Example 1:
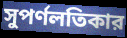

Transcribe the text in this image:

সুপর্ণলতিকার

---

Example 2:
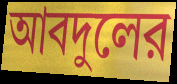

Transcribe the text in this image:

আবদুলের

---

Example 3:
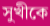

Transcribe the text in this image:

সুখীকে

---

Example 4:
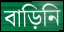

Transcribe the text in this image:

বাড়িনি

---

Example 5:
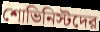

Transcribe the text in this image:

শোভিনিস্টদের